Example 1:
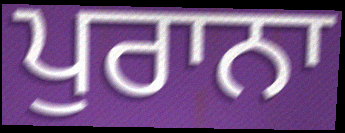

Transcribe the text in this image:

ਪੁਰਾਨਾ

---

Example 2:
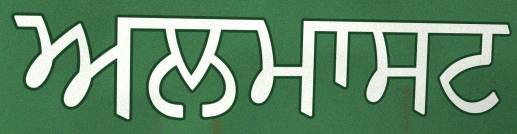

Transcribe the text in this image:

ਅਲਮਾਸਟ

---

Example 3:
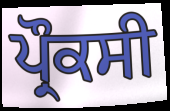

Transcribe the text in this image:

ਪ੍ਰੌਕਸੀ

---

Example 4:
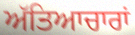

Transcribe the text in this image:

ਅੱਤਿਆਚਾਰਾਂ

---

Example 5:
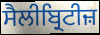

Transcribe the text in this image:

ਸੈਲੀਬ੍ਰਿਟੀਜ਼